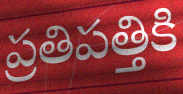
ప్రతిపత్తికి